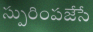
స్పురింపజేసే